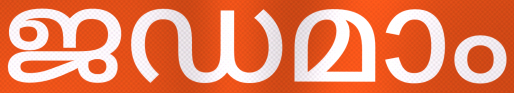
ജഡമാം